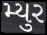
મ્યુર